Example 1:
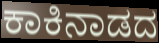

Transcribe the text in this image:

ಕಾಕಿನಾಡದ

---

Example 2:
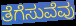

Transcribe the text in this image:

ತೆಗೆಸುವೆವು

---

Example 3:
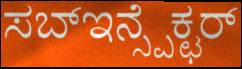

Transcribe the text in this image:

ಸಬ್ಇನ್ಸ್ಪೆಕ್ಟರ್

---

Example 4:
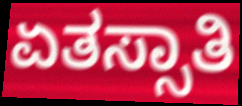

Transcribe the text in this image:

ಏತಸ್ಸಾತಿ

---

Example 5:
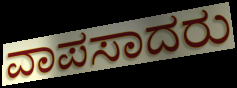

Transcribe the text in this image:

ವಾಪಸಾದರು